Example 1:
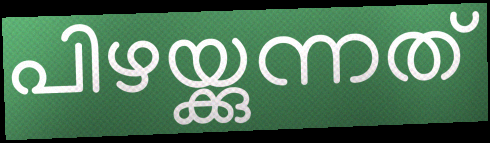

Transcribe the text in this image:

പിഴയ്ക്കുന്നത്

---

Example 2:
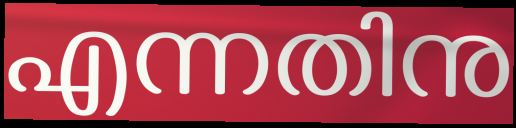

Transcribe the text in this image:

എന്നതിനു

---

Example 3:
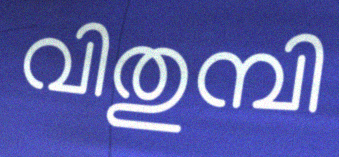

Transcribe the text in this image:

വിതുമ്പി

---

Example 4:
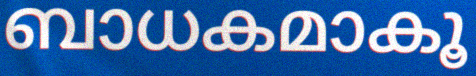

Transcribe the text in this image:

ബാധകമാകൂ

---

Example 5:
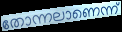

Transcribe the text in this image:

തോന്നലാണെന്ന്